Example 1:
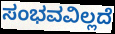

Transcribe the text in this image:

ಸಂಭವವಿಲ್ಲದೆ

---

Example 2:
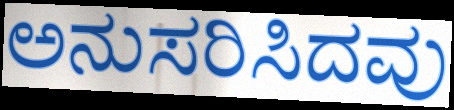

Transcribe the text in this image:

ಅನುಸರಿಸಿದವು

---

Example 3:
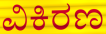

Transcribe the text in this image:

ವಿಕಿರಣ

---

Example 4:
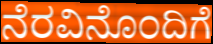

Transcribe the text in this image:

ನೆರವಿನೊಂದಿಗೆ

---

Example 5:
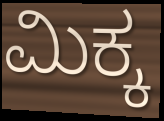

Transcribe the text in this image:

ಮಿಕ್ಕ